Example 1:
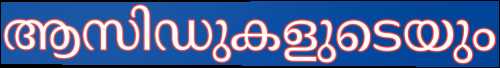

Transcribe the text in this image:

ആസിഡുകളുടെയും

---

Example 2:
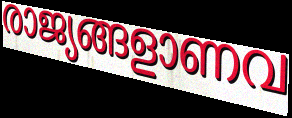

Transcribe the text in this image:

രാജ്യങ്ങളാണവ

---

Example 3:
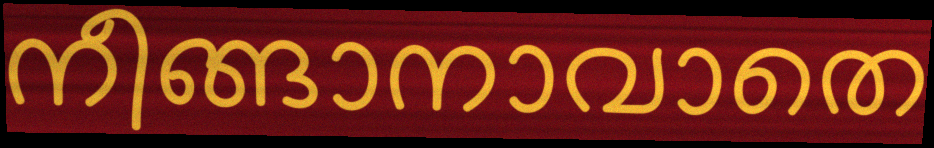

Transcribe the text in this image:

നീങ്ങാനാവാതെ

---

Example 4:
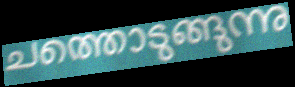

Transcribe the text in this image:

ചത്തൊടുങ്ങുന്നു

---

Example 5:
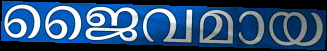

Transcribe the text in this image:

ജൈവമായ